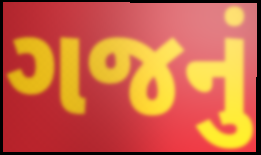
ગજનું